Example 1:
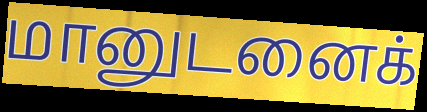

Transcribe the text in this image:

மானுடனைக்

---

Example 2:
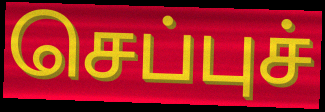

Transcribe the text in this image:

செப்புச்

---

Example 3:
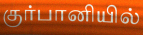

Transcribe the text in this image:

குர்பானியில்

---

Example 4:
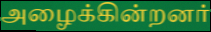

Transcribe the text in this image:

அழைக்கின்றனர்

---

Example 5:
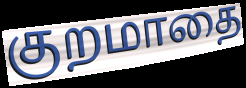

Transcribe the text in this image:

குறமாதை